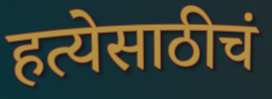
हत्येसाठीचं